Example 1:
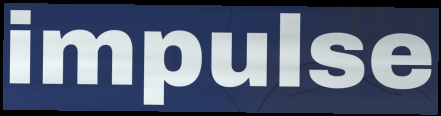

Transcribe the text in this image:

impulse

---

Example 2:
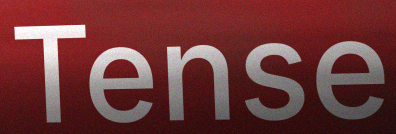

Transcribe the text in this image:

Tense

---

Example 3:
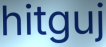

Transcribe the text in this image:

hitguj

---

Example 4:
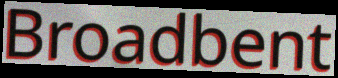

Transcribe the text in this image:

Broadbent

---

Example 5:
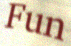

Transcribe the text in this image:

Fun